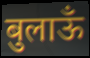
बुलाऊँ